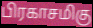
பிரகாசமிகு